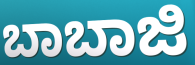
ಬಾಬಾಜಿ